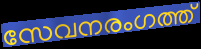
സേവനരംഗത്ത്